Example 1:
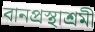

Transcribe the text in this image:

বানপ্রস্থাশ্রমী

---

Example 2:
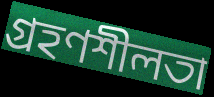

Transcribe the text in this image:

গ্রহণশীলতা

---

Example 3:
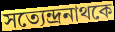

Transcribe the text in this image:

সত্যেন্দ্রনাথকে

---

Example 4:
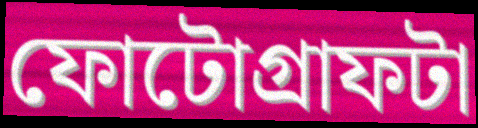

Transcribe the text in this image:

ফোটোগ্রাফটা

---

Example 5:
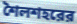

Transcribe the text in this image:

শৈলশহরের